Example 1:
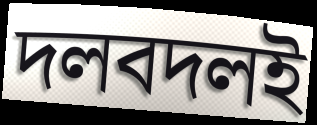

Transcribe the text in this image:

দলবদলই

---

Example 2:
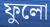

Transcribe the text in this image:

ফুলো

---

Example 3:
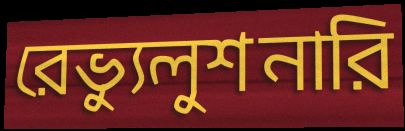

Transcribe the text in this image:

রেভ্যুলুশনারি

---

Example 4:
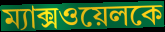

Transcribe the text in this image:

ম্যাক্সওয়েলকে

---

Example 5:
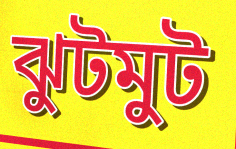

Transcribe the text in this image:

ঝুটমুট